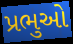
પ્રભુઓ